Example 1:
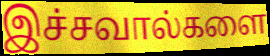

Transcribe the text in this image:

இச்சவால்களை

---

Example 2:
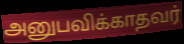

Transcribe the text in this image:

அனுபவிக்காதவர்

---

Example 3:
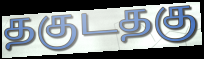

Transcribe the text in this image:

தகுடதகு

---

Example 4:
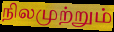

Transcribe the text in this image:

நிலமுற்றும்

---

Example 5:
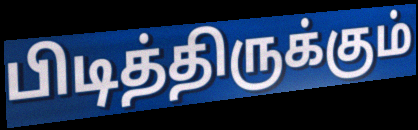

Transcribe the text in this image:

பிடித்திருக்கும்